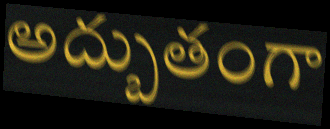
అద్బుతంగా